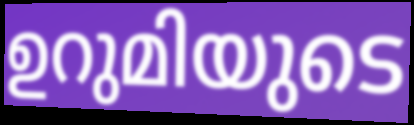
ഉറുമിയുടെ